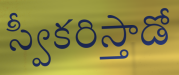
స్వీకరిస్తాడో